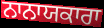
ਨਾਨਾਯਕਾਰਾ